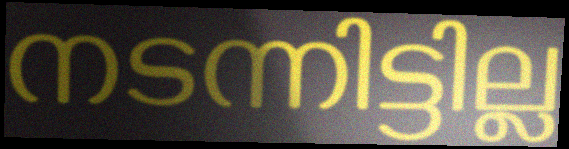
നടന്നിട്ടില്ല